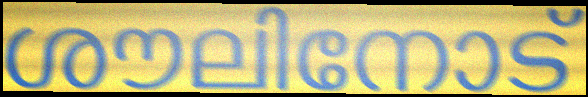
ശൗലിനോട്